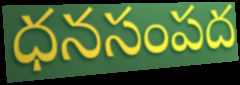
ధనసంపద